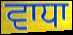
ਵਾਧਾ